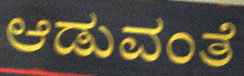
ಆಡುವಂತೆ